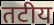
तटीय